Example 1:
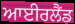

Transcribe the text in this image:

ਆਈਰਲੈਂਡ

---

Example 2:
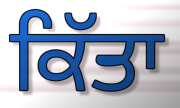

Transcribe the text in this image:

ਕਿੱਤਾ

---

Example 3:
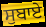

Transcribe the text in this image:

ਸੁਬਾਏ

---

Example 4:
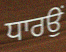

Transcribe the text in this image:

ਧਾਰਉਂ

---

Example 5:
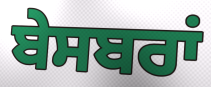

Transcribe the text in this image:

ਬੇਸਬਰਾਂ